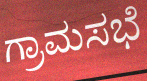
ಗ್ರಾಮಸಭೆ